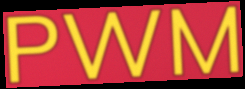
PWM